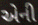
એની